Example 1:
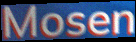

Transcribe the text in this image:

Mosen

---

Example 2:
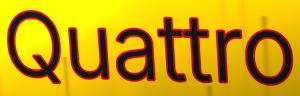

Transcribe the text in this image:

Quattro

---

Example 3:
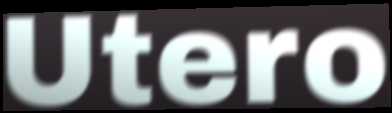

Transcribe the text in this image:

Utero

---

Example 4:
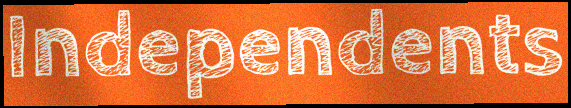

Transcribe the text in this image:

Independents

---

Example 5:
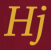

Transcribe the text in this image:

Hj